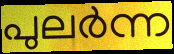
പുലർന്ന